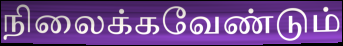
நிலைக்கவேண்டும்